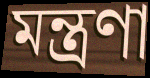
মন্ত্রণা